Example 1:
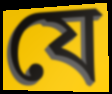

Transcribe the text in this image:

যে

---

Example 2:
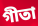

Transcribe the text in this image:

গীতা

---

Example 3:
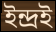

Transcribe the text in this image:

ইন্দ্ৰই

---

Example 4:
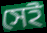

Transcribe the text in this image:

সেই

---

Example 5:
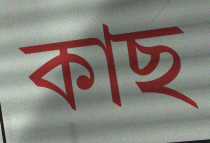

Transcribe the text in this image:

কাছ